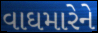
વાઘમારેને